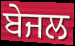
ਬੇਜਲ